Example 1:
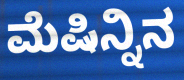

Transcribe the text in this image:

ಮೆಷಿನ್ನಿನ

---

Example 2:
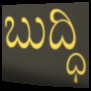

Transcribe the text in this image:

ಬುದ್ಧಿ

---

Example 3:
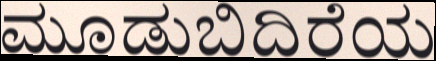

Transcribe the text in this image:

ಮೂಡುಬಿದಿರೆಯ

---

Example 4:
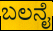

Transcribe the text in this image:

ಬಲನೈ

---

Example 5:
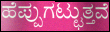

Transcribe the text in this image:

ಹೆಪ್ಪುಗಟ್ಟುತ್ತವೆ